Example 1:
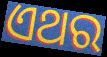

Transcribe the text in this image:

ଏଥର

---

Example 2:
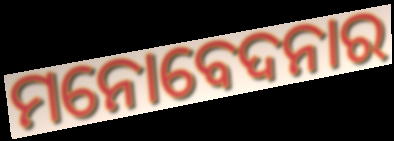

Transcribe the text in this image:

ମନୋବେଦନାର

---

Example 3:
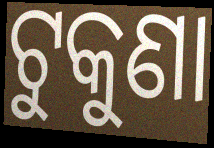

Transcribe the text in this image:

ଟୁକୁଣା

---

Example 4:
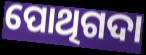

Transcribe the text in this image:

ପୋଥିଗଦା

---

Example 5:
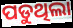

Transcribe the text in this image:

ପଡୁଥିଲା